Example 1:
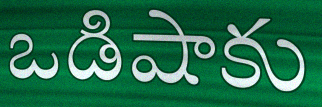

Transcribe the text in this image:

ఒడిషాకు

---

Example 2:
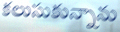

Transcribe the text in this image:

కలుసుకున్నాను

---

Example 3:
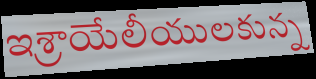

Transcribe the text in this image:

ఇశ్రాయేలీయులకున్న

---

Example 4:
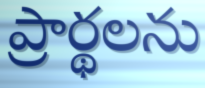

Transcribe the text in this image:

ప్రార్థలను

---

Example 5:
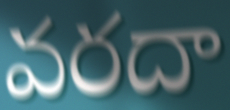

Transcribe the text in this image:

వరదా